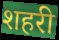
शहरी